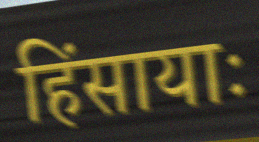
हिंसायाः